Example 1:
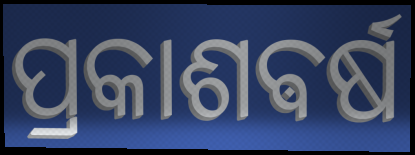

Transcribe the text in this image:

ପ୍ରକାଶଵର୍ଷ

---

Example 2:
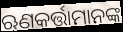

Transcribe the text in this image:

ଋଣକର୍ତ୍ତାମାନଙ୍କ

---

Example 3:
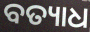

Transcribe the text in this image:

ବତ୍ୟାଧ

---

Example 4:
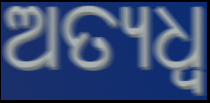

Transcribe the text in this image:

ଅତ୍ୟଧ୍ୱ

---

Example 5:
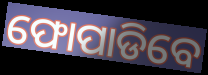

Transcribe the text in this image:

ଫୋପାଡିବେ